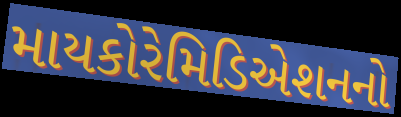
માયકોરેમિડિએશનનો